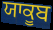
ਯਾਕੂਬ